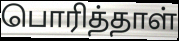
பொரித்தாள்